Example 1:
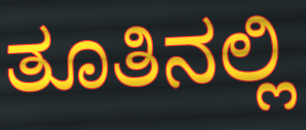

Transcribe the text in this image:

ತೂತಿನಲ್ಲಿ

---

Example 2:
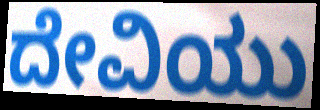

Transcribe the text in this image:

ದೇವಿಯು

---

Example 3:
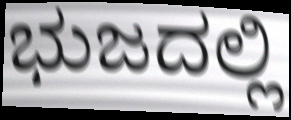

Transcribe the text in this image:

ಭುಜದಲ್ಲಿ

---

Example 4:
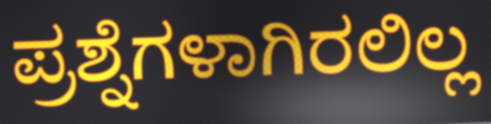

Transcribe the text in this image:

ಪ್ರಶ್ನೆಗಳಾಗಿರಲಿಲ್ಲ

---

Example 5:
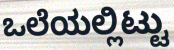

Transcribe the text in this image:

ಒಲೆಯಲ್ಲಿಟ್ಟು